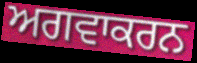
ਅਗਵਾਕਰਨ